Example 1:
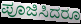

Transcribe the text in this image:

ಪೂಜಿಸಿದರೂ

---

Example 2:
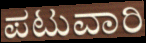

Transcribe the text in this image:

ಪಟುವಾರಿ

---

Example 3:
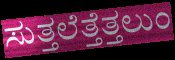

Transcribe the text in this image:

ಸುತ್ತಲೆತ್ತೆತ್ತಲುಂ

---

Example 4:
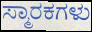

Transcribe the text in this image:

ಸ್ಮಾರಕಗಳು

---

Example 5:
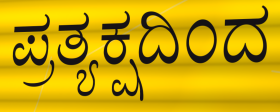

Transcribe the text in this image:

ಪ್ರತ್ಯಕ್ಷದಿಂದ